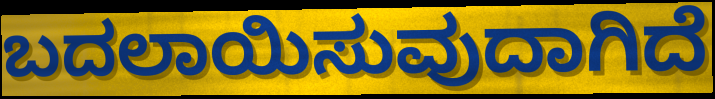
ಬದಲಾಯಿಸುವುದಾಗಿದೆ